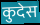
कुदेस